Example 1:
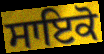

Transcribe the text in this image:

ਸਾਇਕੋ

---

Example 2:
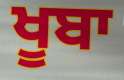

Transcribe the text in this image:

ਖੂਬਾ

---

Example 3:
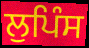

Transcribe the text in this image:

ਲੁਪਿੰਸ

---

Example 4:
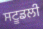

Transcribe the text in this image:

ਸਟੂਡਲੀ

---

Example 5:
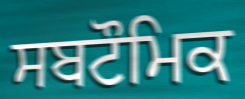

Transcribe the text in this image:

ਸਬਟੌਮਿਕ